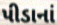
પીડાનાં